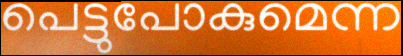
പെട്ടുപോകുമെന്ന